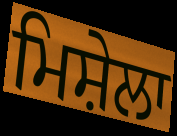
ਮਿਸ਼ੇਲਾ